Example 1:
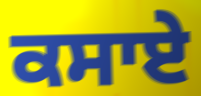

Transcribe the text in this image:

ਕਸਾਏ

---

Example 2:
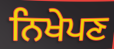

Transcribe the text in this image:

ਨਿਖੇਪਣ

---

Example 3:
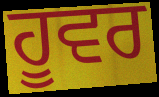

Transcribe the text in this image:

ਹੂਵਰ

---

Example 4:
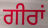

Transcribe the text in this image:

ਗੀਰਾਂ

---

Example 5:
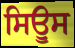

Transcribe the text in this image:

ਸਿਊਸ